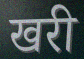
खरी